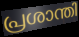
പ്രശാന്തി